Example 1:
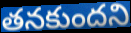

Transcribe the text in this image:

తనకుందని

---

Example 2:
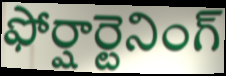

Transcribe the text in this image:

ఫోర్షార్టెనింగ్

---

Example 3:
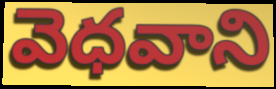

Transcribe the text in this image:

వెధవాని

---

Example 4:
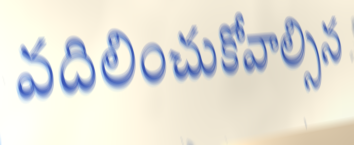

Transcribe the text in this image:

వదిలించుకోవాల్సిన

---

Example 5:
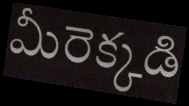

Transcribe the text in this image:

మీరెక్కడి